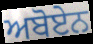
ਅਬੋਏਨ